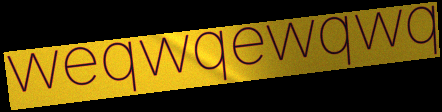
weqwqewqwq